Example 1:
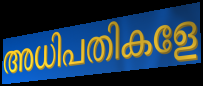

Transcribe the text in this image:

അധിപതികളേ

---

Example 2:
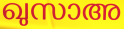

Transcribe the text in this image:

ഖുസാഅ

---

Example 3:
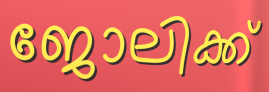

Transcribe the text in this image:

ജോലിക്ക്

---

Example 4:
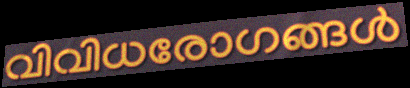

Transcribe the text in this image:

വിവിധരോഗങ്ങൾ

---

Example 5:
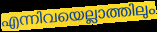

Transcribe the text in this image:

എന്നിവയെല്ലാത്തിലും